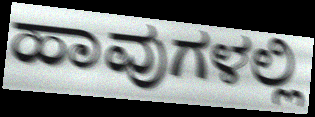
ಹಾವುಗಳಲ್ಲಿ